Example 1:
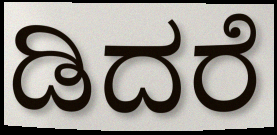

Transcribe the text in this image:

ಡಿದರೆ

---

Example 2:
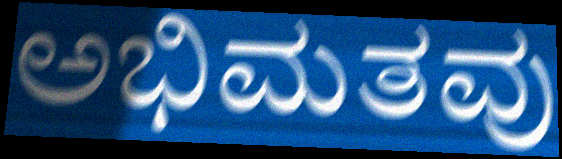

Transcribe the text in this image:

ಅಭಿಮತವು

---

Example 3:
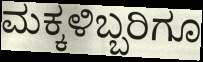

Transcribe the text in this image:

ಮಕ್ಕಳಿಬ್ಬರಿಗೂ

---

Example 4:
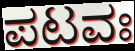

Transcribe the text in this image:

ಪಟವಃ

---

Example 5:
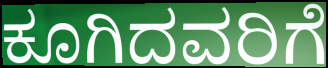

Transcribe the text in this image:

ಕೂಗಿದವರಿಗೆ